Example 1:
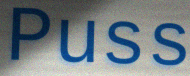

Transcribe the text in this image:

Puss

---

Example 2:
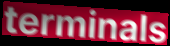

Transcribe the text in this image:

terminals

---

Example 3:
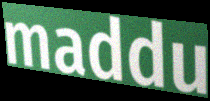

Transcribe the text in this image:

maddu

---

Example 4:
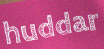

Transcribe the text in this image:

huddar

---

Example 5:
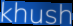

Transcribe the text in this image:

khush